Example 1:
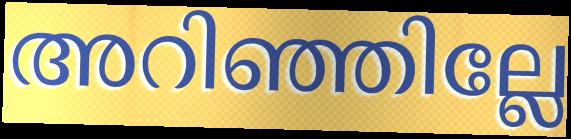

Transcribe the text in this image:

അറിഞ്ഞില്ലേ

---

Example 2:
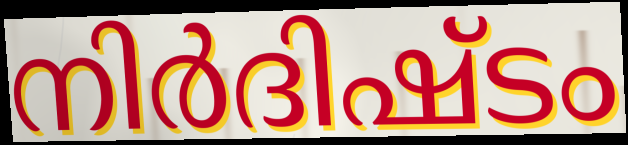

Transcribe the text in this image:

നിർദിഷ്ടം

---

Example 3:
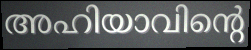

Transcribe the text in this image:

അഹിയാവിന്റെ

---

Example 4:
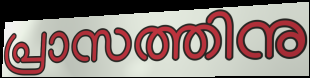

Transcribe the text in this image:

പ്രാസത്തിനു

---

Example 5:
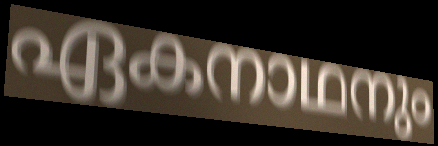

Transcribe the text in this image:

ഏകനാഥനും